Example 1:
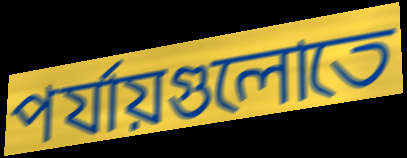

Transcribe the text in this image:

পর্যায়গুলোতে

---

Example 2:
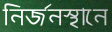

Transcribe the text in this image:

নির্জনস্থানে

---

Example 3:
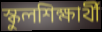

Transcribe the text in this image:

স্কুলশিক্ষার্থী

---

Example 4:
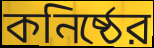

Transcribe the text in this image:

কনিষ্ঠের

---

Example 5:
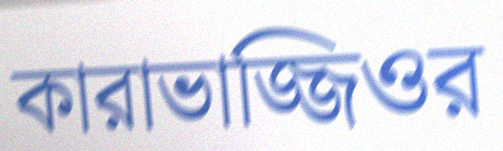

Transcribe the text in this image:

কারাভাজ্জিওর